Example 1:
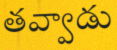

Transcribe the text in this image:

తవ్వాడు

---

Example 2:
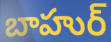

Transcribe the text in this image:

బాహుర్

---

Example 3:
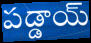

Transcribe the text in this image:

పడ్డాయ్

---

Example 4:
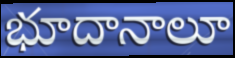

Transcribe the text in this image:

భూదానాలూ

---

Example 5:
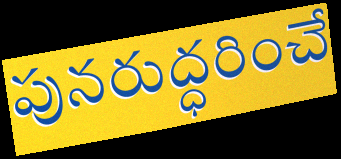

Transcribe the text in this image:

పునరుద్ధరించే